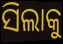
ସିଲାକୁ